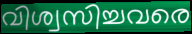
വിശ്വസിച്ചവരെ